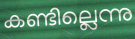
കണ്ടില്ലെന്നു